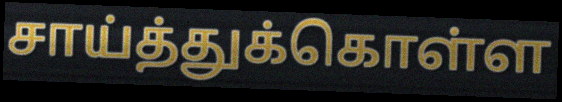
சாய்த்துக்கொள்ள